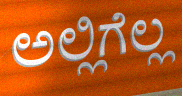
ಅಲ್ಲಿಗೆಲ್ಲ